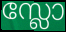
സ്ലോ